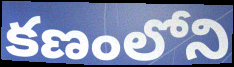
కణంలోని